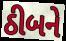
ઠીબને